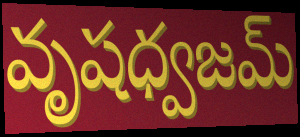
వృషధ్వజమ్